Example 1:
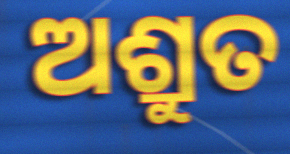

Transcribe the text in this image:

ଅଶ୍ରୁତ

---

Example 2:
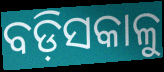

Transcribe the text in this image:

ବଡ଼ିସକାଳୁ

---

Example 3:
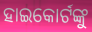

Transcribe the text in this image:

ହାଇକୋର୍ଟଙ୍କୁ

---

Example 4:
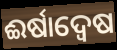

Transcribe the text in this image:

ଈର୍ଷାଦ୍ଵେଷ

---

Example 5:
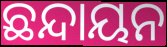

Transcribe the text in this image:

ଛନ୍ଦାୟନ